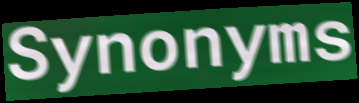
Synonyms